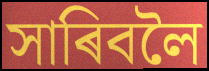
সাৰিবলৈ